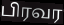
பிரவர